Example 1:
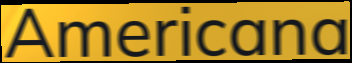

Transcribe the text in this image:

Americana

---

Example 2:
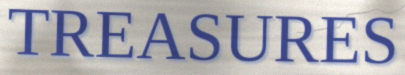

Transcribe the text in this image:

TREASURES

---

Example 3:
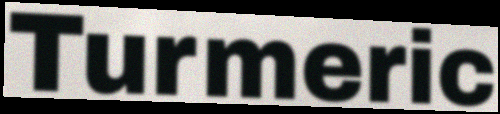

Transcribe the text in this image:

Turmeric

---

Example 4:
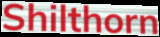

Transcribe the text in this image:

Shilthorn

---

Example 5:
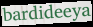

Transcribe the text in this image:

bardideeya